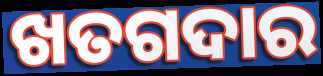
ଖତଗଦାର